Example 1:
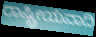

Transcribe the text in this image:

ರಾಷ್ಟ್ರೀಯವಾದಿ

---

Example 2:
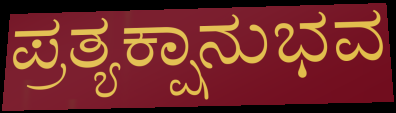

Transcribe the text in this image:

ಪ್ರತ್ಯಕ್ಷಾನುಭವ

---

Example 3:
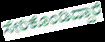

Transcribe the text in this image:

ಸೇರಿಕೊಂಡಿದ್ದಾರೆ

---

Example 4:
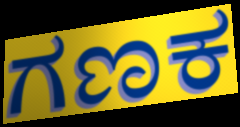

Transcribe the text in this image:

ಗಣಕ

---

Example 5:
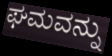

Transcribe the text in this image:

ಘಮವನ್ನು